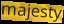
majesty